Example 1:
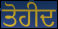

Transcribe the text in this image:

ਤੋਹੀਦ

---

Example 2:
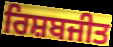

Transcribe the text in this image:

ਰਿਸ਼ਬਜੀਤ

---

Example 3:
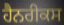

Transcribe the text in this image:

ਹੈਨਰੀਕਸ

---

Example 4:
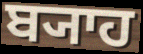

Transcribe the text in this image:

ਬ੍ਯਾਹ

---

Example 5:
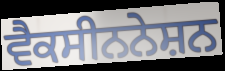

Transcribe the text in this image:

ਵੈਕਸੀਨਨੇਸ਼ਨ